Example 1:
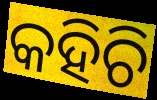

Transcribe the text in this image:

କହିଚି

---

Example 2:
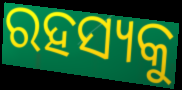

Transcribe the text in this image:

ରହସ୍ୟକୁ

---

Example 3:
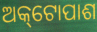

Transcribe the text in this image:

ଅକ୍‌ଟୋପାଶ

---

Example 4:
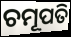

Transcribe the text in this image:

ଚମୂପତି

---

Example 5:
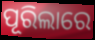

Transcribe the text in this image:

ପୂରିଲାରେ